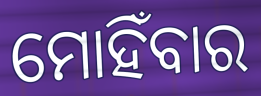
ମୋହିଁବାର